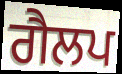
ਗੈਲਪ